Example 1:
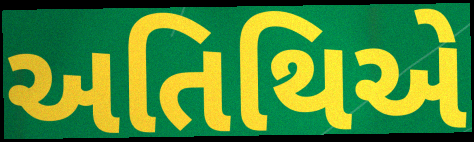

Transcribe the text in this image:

અતિથિએ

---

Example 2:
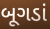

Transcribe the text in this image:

બૂગડાં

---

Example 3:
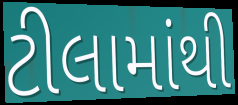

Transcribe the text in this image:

ટીલામાંથી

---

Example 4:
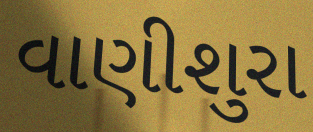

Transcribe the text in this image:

વાણીશુરા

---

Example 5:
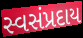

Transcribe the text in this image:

સ્વસંપ્રદાય